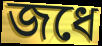
জধে